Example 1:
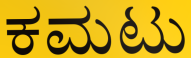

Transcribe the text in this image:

ಕಮಟು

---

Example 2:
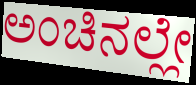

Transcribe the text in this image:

ಅಂಚಿನಲ್ಲೇ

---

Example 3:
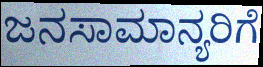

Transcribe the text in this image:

ಜನಸಾಮಾನ್ಯರಿಗೆ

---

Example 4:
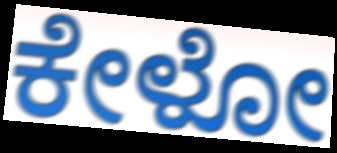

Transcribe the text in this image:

ಕೇಳೋ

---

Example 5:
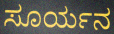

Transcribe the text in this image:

ಸೂರ್ಯನ